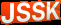
JSSK